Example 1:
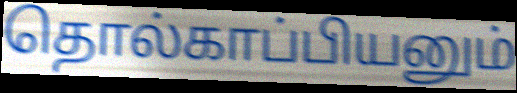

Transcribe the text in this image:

தொல்காப்பியனும்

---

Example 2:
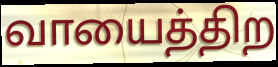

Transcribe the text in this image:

வாயைத்திற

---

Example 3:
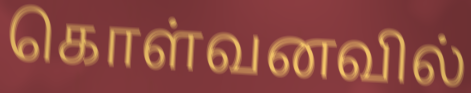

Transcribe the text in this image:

கொள்வனவில்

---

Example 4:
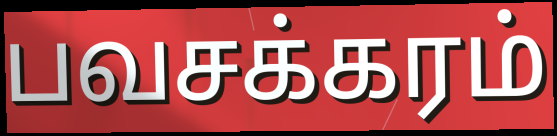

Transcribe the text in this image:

பவசக்கரம்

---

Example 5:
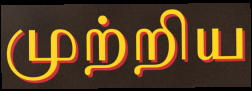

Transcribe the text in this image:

முற்றிய